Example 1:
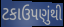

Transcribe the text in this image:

ટકાઉપણુંથી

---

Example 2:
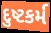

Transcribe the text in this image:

દુષ્ટકર્મ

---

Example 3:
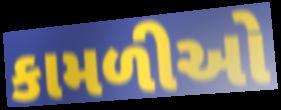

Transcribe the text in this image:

કામળીઓ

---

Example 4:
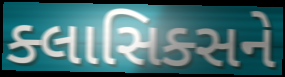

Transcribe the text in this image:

ક્લાસિક્સને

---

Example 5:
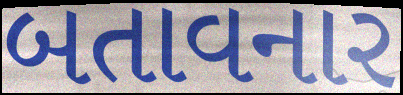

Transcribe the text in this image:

બતાવનાર